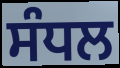
ਸੰਧਲ